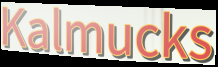
Kalmucks